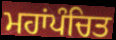
ਮਹਾਂਪੰਚਿਤ